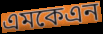
এমকেএন